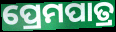
ପ୍ରେମପାତ୍ର